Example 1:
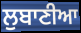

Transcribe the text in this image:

ਲੁਬਾਣੀਆ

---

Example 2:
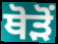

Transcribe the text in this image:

ਥੋੜੋਂ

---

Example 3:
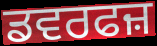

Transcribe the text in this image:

ਡਵਰਫਜ਼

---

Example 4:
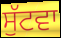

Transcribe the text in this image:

ਸੁੱਟਵਾ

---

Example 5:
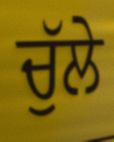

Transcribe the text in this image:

ਚੁੱਲੇ